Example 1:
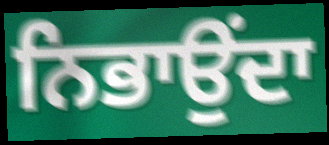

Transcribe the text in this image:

ਨਿਭਾਉਂਦਾ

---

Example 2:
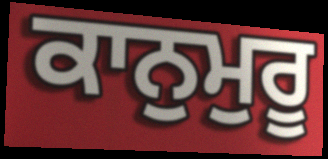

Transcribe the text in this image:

ਕਾਨੁਮੁਰੂ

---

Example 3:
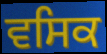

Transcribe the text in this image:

ਵਸਿਕ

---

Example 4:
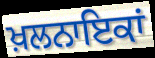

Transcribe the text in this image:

ਖ਼ਲਨਾਇਕਾਂ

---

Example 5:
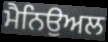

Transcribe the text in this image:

ਮੈਨਿਉਅਲ